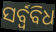
ସର୍ବ୍ବବିଧ